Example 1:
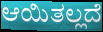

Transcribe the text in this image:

ಆಯಿತಲ್ಲದೆ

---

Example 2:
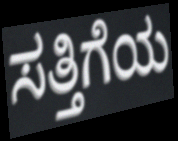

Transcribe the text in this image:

ಸತ್ತಿಗೆಯ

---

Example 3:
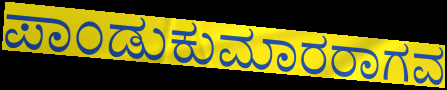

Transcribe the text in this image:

ಪಾಂಡುಕುಮಾರರಾಗವ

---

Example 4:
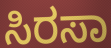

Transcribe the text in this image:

ಸಿರಸಾ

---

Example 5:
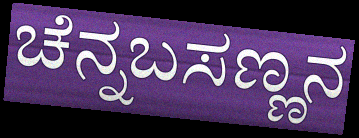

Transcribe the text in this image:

ಚೆನ್ನಬಸಣ್ಣನ